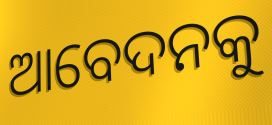
ଆବେଦନକୁ